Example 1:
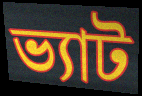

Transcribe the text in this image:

ভ্যাট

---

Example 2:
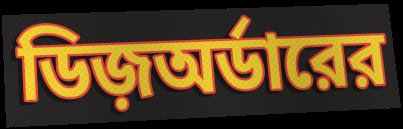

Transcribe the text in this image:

ডিজ়অর্ডারের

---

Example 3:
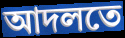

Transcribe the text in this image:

আদলতে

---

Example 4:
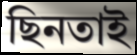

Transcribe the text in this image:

ছিনতাই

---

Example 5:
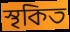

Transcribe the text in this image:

স্থকিত